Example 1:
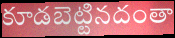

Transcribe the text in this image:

కూడబెట్టినదంతా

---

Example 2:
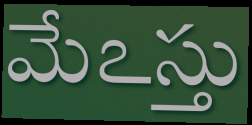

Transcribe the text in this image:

మేఽస్తు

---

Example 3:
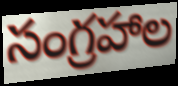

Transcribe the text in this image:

సంగ్రహాల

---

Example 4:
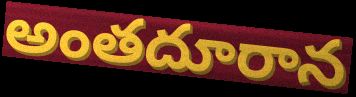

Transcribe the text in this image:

అంతదూరాన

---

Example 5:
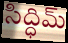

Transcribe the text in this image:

సిద్ధిమ్